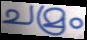
ചമ്രം